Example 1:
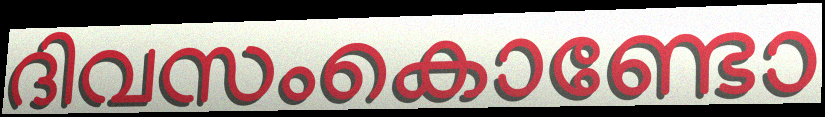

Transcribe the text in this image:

ദിവസംകൊണ്ടോ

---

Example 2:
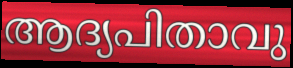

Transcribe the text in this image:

ആദ്യപിതാവു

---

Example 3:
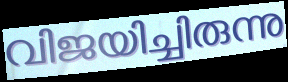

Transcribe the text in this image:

വിജയിച്ചിരുന്നു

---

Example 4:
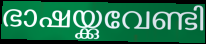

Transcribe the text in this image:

ഭാഷയ്ക്കുവേണ്ടി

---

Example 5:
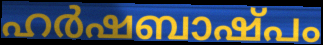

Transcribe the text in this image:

ഹർഷബാഷ്പം